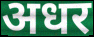
अधर